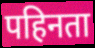
पहिनता